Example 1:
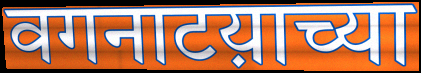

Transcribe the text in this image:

वगनाटय़ाच्या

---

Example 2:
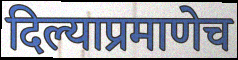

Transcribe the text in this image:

दिल्याप्रमाणेच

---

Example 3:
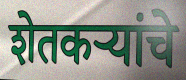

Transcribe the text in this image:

शेतकर्‍यांचे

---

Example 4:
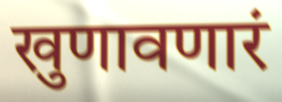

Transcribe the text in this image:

खुणावणारं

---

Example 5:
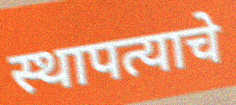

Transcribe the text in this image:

स्थापत्याचे